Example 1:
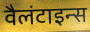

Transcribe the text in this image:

वैलंटाइन्स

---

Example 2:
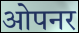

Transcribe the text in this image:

ओपनर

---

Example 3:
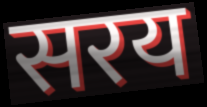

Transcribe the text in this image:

सरय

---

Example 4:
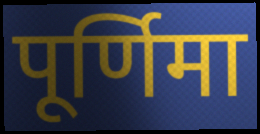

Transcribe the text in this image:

पूर्णिमा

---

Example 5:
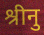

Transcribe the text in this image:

श्रीनु